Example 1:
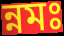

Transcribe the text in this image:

ন্নমঃ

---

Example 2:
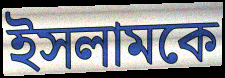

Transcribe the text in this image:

ইসলামকে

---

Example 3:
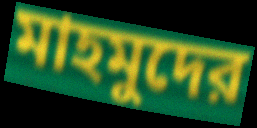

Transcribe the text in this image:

মাহমুদের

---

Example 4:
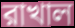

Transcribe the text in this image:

রাখাল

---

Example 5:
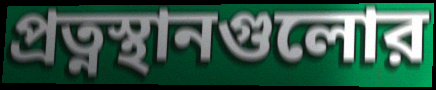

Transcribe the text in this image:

প্রত্নস্থানগুলোর